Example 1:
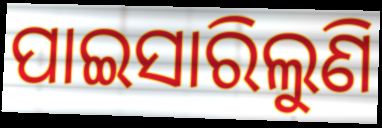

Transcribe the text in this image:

ପାଇସାରିଲୁଣି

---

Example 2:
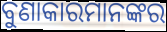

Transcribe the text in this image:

ବୁଣାକାରମାନଙ୍କର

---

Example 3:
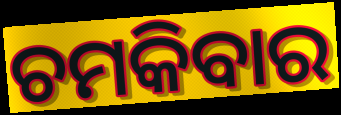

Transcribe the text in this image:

ଚମକିବାର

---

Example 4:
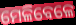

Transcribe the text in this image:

ମେଳିବେଳେ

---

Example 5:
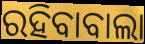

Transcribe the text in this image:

ରହିବାବାଲା